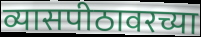
व्यासपीठावरच्या